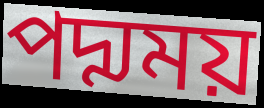
পদ্মময়